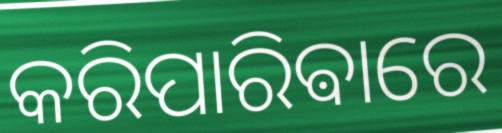
କରିପାରିଵାରେ